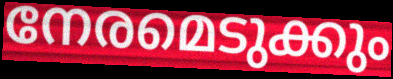
നേരമെടുക്കും